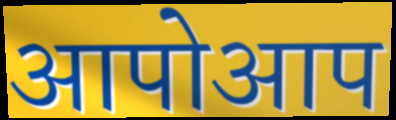
आपोआप